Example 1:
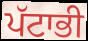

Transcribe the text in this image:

ਪੱਟਾਭੀ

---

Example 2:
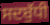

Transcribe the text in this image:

ਸਦਬੁੱਧੀ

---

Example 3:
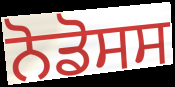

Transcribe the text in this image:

ਨੋਡੋਸਸ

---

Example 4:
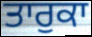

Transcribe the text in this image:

ਤਾਰੁਕਾ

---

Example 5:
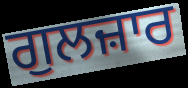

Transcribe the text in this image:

ਗੁਲਜ਼ਾਰ